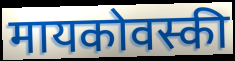
मायकोवस्की